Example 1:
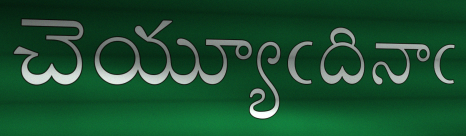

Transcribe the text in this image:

చెయ్యూఁదినాఁ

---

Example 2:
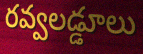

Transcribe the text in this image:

రవ్వలడ్డూలు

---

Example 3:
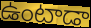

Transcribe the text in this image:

ఉంటాడా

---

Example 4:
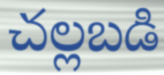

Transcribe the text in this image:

చల్లబడి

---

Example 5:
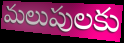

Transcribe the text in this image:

మలుపులకు